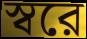
স্বরে